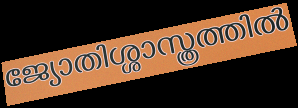
ജ്യോതിശ്ശാസ്ത്രത്തിൽ